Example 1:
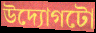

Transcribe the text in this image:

উদ্যোগটো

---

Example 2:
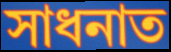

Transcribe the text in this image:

সাধনাত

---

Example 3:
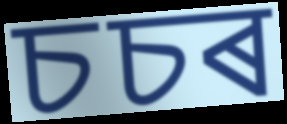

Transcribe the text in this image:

চচৰ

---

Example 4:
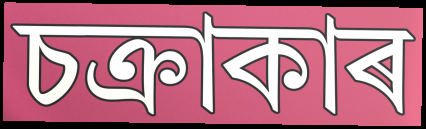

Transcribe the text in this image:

চক্ৰাকাৰ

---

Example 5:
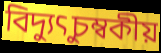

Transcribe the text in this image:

বিদ্যুৎচুম্বকীয়